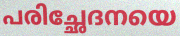
പരിച്ഛേദനയെ